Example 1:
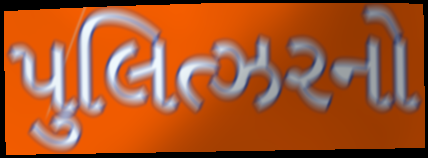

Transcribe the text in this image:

પુલિત્ઝરનો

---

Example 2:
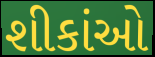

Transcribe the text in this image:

શીકાંઓ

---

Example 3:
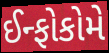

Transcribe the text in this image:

ઈન્ફોકોમે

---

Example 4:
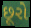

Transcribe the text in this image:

છૂરો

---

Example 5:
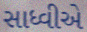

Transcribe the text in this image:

સાધ્વીએ